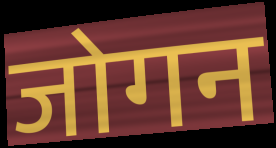
जोगन